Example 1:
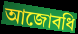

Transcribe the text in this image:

আজোবধি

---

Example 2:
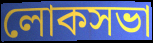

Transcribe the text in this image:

লোকসভা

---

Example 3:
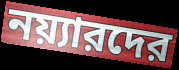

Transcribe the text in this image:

নয়্যারদের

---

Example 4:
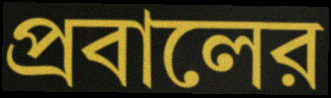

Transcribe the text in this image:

প্রবালের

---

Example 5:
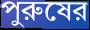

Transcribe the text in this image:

পুরুষের